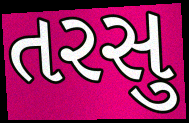
તરસુ